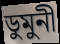
ডুমুনী